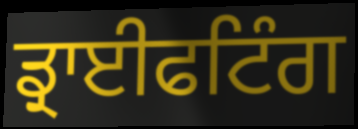
ਡ੍ਰਾਈਫਟਿੰਗ